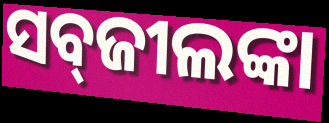
ସବ୍‌ଜୀଲଙ୍କା